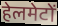
हेलमेटों